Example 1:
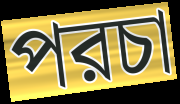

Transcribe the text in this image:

পরচা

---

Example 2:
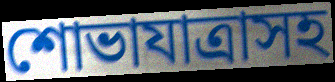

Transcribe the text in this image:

শোভাযাত্রাসহ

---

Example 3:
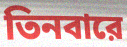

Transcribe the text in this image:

তিনবারে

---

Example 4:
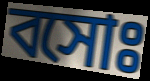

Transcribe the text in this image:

বসোঃ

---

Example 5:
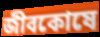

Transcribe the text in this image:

জীবকোষে